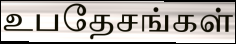
உபதேசங்கள்